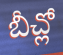
బీచ్లో